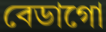
বেডাগো